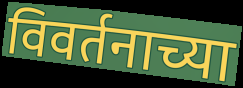
विवर्तनाच्या